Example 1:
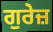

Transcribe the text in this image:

ਗੁਰੇਜ਼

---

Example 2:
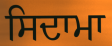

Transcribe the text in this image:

ਸਿਦਾਮਾ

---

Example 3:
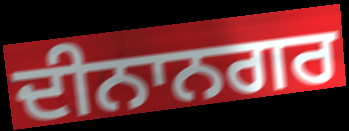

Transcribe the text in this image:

ਦੀਨਾਨਗਰ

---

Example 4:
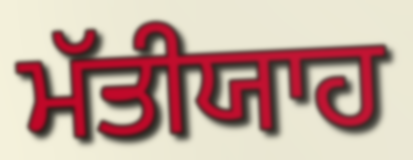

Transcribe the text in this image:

ਮੱਤੀਯਾਹ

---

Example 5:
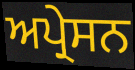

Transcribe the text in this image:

ਅਪ੍ਰੇਸਨ